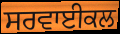
ਸਰਵਾਈਕਲ